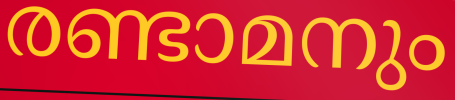
രണ്ടാമനും